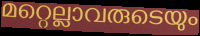
മറ്റെല്ലാവരുടെയും